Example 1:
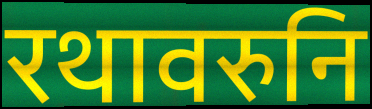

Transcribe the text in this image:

रथावरुनि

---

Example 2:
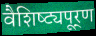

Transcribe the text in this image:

वैशिष्ट्यपूर्ण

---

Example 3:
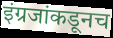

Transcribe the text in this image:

इंग्रजांकडूनच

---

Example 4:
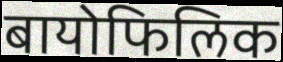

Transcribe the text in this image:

बायोफिलिक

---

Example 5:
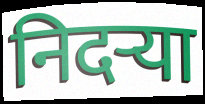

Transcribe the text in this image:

निदऱ्या